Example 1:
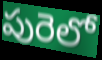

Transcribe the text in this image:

పురెలో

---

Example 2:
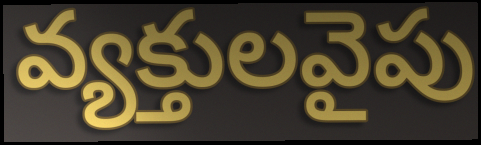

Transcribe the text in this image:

వ్యక్తులవైపు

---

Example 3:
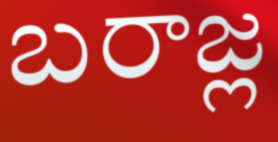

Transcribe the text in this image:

బరాజ్ల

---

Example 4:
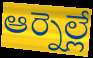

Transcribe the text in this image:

ఆర్నెల్లే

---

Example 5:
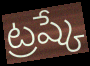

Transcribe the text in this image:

ట్రష్కే